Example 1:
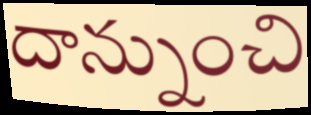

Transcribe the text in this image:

దాన్నుంచి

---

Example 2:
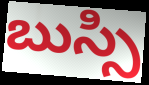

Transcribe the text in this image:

బుస్సి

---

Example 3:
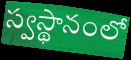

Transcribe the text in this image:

స్వస్థానంలో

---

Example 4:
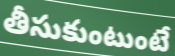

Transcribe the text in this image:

తీసుకుంటుంటే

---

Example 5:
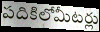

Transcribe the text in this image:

పదికిలోమీటర్లు